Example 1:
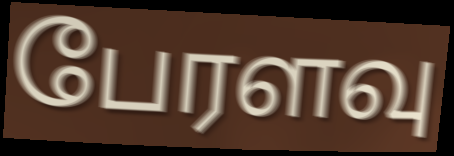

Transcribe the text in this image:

பேரளவு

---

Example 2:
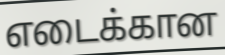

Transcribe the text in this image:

எடைக்கான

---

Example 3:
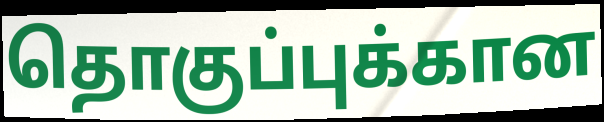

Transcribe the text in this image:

தொகுப்புக்கான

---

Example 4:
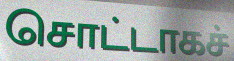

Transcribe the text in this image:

சொட்டாகச்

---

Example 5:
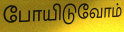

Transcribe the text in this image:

போயிடுவோம்